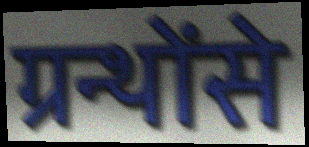
ग्रन्थोंसे